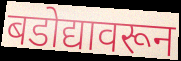
बडोद्यावरून